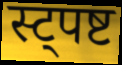
स्ट्पष्ट